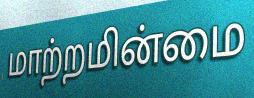
மாற்றமின்மை